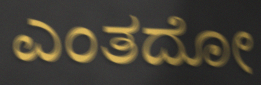
ಎಂತದೋ